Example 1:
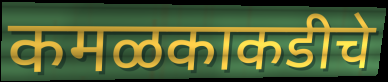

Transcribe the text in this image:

कमळकाकडीचे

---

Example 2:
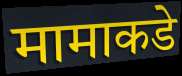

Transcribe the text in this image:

मामाकडे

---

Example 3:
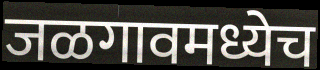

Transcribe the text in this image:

जळगावमध्येच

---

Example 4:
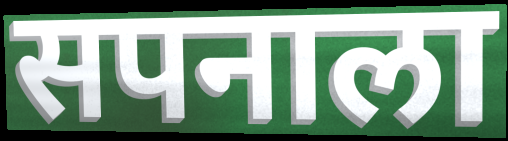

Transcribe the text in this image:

सपनाला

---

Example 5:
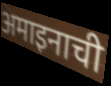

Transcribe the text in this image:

अमाइनाची